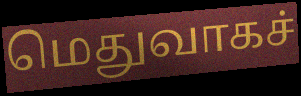
மெதுவாகச்